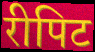
रीपिट